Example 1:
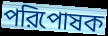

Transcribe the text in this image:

পরিপোষক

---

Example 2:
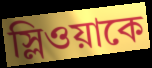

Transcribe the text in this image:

স্লিওয়াকে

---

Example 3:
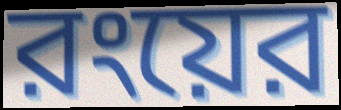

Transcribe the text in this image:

রংয়ের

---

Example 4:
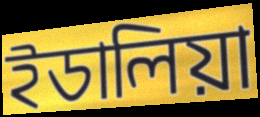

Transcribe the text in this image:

ইডালিয়া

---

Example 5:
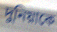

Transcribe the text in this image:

দুনিয়াকে